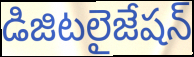
డిజిటలైజేషన్